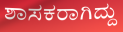
ಶಾಸಕರಾಗಿದ್ದು